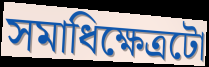
সমাধিক্ষেত্ৰটো